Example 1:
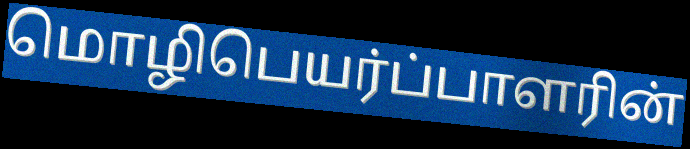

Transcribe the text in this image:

மொழிபெயர்ப்பாளரின்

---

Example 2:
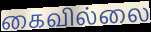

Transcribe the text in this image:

கைவில்லை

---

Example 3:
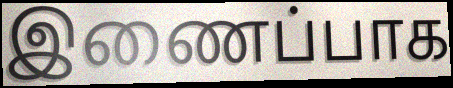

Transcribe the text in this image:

இணைப்பாக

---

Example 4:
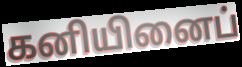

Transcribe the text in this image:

கனியினைப்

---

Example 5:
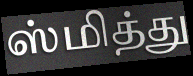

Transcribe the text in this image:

ஸ்மித்து